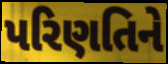
પરિણતિને